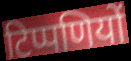
टिप्पणियों